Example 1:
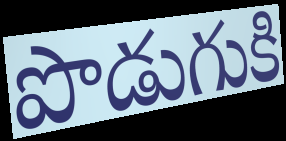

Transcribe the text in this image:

పొడుగుకి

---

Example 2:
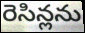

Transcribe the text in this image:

రెసిన్లను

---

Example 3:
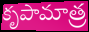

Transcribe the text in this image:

కృపామాత్ర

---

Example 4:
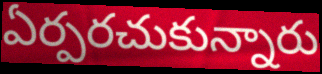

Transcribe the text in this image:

ఏర్పరచుకున్నారు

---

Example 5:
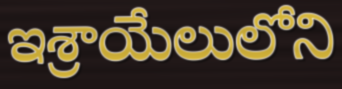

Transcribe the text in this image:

ఇశ్రాయేలులోని